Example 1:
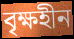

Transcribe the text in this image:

বৃক্ষহীন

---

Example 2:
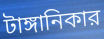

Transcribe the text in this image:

টাঙ্গানিকার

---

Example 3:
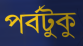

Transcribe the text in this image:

পর্বটুকু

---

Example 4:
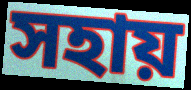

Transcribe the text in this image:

সহায়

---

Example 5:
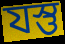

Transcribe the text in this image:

যস্তু